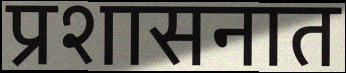
प्रशासनात